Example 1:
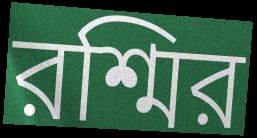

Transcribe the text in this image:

রশ্মির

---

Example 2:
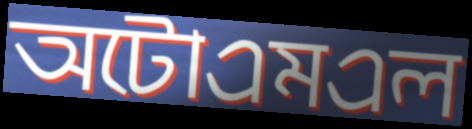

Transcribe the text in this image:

অটোএমএল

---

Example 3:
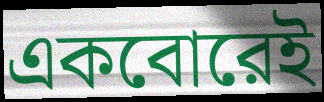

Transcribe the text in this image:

একবোরেই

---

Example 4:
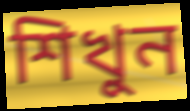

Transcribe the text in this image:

শিখুন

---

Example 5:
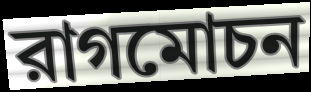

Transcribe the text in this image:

রাগমোচন